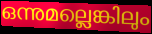
ഒന്നുമല്ലെങ്കിലും